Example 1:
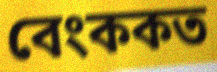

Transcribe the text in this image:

বেংককত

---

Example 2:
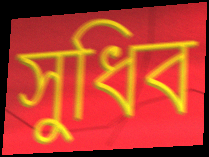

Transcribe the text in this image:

সুধিব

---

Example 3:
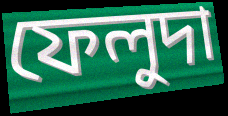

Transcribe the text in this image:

ফেলুদা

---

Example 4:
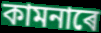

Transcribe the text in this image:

কামনাৰে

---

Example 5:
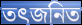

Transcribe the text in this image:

তৎজনিত